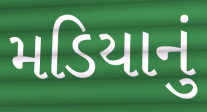
મડિયાનું